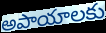
అపాయాలకు